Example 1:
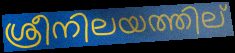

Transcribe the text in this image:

ശ്രീനിലയത്തില്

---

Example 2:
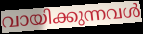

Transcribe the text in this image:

വായിക്കുന്നവൾ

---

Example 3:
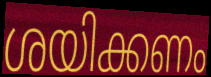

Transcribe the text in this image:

ശയിക്കണം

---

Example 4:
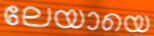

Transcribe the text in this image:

ലേയായെ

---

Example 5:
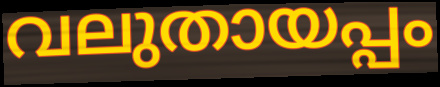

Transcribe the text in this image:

വലുതായപ്പം